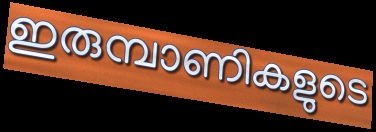
ഇരുമ്പാണികളുടെ